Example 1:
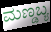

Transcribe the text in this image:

ಮಣ್ಡಬ್ಯ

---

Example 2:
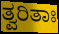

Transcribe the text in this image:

ತ್ವರಿತಾಃ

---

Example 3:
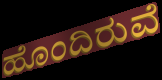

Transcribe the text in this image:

ಹೊಂದಿರುವೆ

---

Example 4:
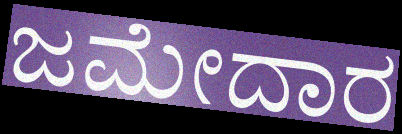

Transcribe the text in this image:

ಜಮೇದಾರ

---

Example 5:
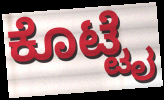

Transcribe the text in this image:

ಕೊಟ್ಟೈ